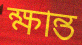
ক্ষান্ত